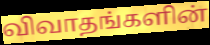
விவாதங்களின்